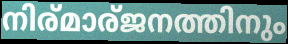
നിര്മാര്ജനത്തിനും